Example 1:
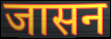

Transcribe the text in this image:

जासन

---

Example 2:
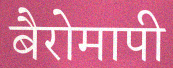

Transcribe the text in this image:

बैरोमापी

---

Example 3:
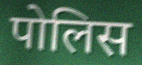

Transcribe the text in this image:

पोलिस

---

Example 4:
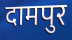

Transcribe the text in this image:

दामपुर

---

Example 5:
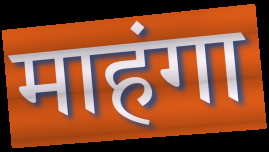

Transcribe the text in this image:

माहंगा